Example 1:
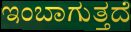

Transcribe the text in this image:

ಇಂಬಾಗುತ್ತದೆ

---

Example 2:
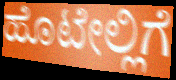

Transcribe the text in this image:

ಹೊಟೇಲ್ಲಿಗೆ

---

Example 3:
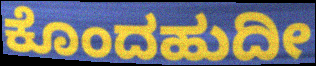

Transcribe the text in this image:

ಕೊಂದಹುದೀ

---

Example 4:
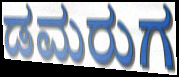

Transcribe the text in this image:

ಡಮರುಗ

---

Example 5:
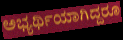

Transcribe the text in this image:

ಅಭ್ಯರ್ಥಿಯಾಗಿದ್ದರೂ